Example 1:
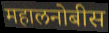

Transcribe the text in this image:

महालनोबीस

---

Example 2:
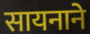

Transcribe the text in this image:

सायनाने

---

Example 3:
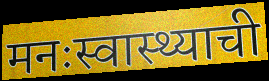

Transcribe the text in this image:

मनःस्वास्थ्याची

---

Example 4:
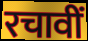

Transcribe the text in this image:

रचावीं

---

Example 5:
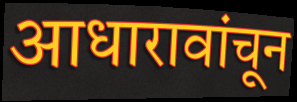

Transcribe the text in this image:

आधारावांचून